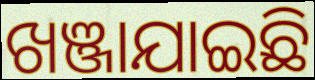
ଖଞ୍ଜାଯାଇଛି